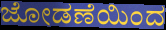
ಜೋಡಣೆಯಿಂದ